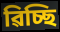
ৱিচ্ছি